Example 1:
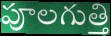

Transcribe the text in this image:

పూలగుత్తి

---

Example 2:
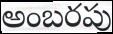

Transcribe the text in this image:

అంబరపు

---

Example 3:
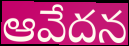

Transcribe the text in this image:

ఆవేదన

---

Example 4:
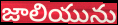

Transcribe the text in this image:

జాలియును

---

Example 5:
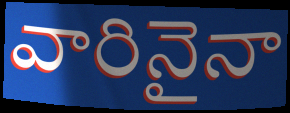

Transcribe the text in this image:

వారినైనా